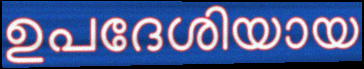
ഉപദേശിയായ